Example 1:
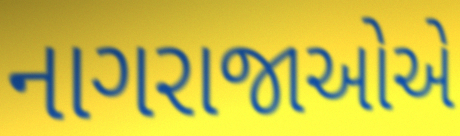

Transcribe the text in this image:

નાગરાજાઓએ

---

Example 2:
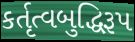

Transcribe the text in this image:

કર્તૃત્વબુદ્ધિરૂપ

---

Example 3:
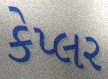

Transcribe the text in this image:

કેપ્લર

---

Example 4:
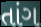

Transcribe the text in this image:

તાંગ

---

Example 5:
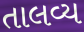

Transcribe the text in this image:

તાલવ્ય